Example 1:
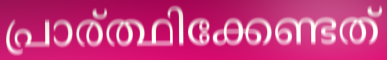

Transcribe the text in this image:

പ്രാര്ത്ഥിക്കേണ്ടത്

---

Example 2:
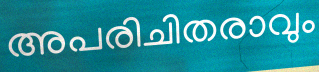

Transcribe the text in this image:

അപരിചിതരാവും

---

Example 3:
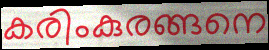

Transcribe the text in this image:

കരിംകുരങ്ങനെ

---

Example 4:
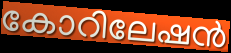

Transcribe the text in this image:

കോറിലേഷൻ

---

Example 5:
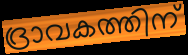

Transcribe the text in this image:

ദ്രാവകത്തിന്